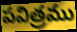
పవిత్రము